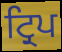
ਟ੍ਰਿਪ